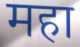
महा